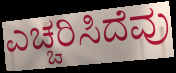
ಎಚ್ಚರಿಸಿದೆವು